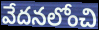
వేదనలోంచి